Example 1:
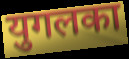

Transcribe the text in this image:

युगलका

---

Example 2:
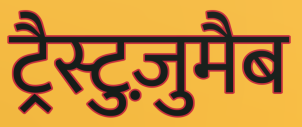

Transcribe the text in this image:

ट्रैस्टुज़ुमैब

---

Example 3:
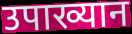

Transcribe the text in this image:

उपाख्यान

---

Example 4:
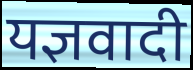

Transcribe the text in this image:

यज्ञवादी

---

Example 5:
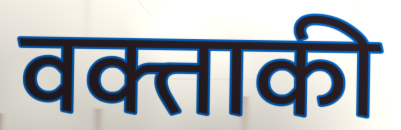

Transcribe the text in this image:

वक्ताकी